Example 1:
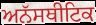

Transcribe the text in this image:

ਅਨੱਸਥੀਟਿਕ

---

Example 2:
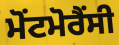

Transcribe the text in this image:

ਮੋਂਟਮੋਰੈਂਸੀ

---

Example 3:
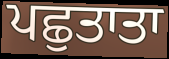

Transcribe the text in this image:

ਪਛੁਤਾਤਾ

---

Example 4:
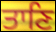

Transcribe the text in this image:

ਤਾਣਿ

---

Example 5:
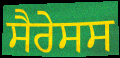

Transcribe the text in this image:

ਸੈਰੇਸਸ